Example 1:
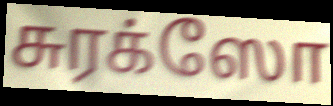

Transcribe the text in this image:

சுரக்ஸோ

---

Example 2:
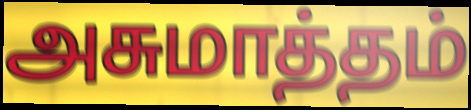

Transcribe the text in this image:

அசுமாத்தம்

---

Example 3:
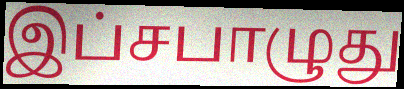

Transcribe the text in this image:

இப்சபாழுது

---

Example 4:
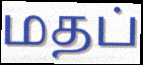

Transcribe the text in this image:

மதப்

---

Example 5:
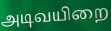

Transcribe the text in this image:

அடிவயிறை